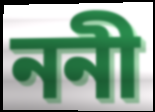
ননী